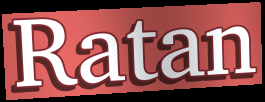
Ratan